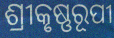
ଶ୍ରୀକୃଷ୍ଣରୂପୀ